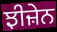
ਝੀਜ਼ੇਨ